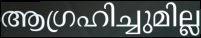
ആഗ്രഹിച്ചുമില്ല